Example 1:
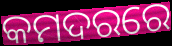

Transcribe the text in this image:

କମଦରରେ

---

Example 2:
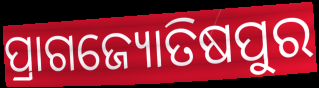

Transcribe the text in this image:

ପ୍ରାଗଜ୍ୟୋତିଷପୁର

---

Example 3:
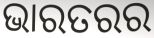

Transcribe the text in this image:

ଭାରତରର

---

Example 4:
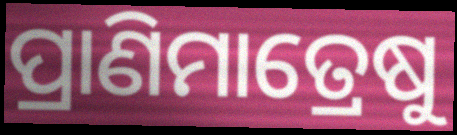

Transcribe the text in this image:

ପ୍ରାଣିମାତ୍ରେଷୁ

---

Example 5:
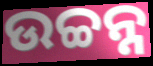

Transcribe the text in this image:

ଉଚ୍ଚନ୍ନ